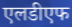
एलडीएफ